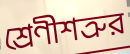
শ্রেণীশত্রুর